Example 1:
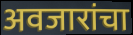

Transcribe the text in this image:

अवजारांचा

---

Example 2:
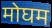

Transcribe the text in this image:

मोघम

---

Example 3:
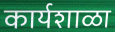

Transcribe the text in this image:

कार्यशाळा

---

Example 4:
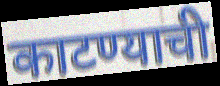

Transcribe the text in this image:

काटण्याची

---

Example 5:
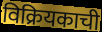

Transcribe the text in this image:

विक्रियकाची